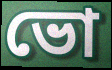
ভো